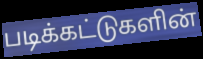
படிக்கட்டுகளின்